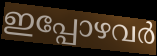
ഇപ്പോഴവർ